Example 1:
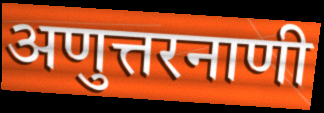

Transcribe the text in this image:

अणुत्तरनाणी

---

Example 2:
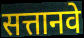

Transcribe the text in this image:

सत्तानवे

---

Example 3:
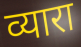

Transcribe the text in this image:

व्यारा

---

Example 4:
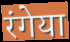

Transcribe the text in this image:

रंगेया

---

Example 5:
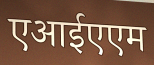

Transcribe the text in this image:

एआईएएम